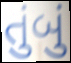
તુંબું